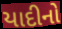
યાદીનો